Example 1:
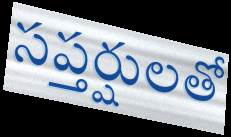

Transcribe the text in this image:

సప్తర్షులతో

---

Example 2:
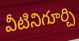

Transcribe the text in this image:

వీటినిగూర్చి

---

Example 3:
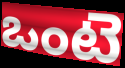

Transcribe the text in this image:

ఒంటె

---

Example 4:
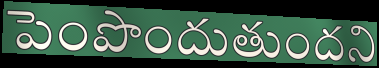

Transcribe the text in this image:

పెంపొందుతుందని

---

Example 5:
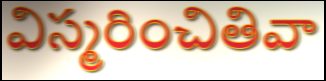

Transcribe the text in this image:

విస్మరించితివా